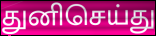
துனிசெய்து